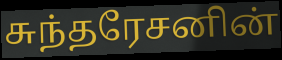
சுந்தரேசனின்